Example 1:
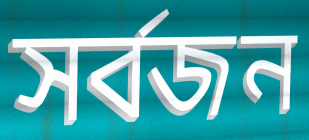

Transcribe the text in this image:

সর্বজন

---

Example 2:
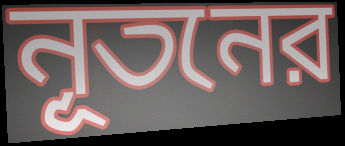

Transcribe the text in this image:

নূতনের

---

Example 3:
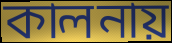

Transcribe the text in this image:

কালনায়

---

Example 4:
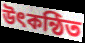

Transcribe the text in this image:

উৎকন্ঠিত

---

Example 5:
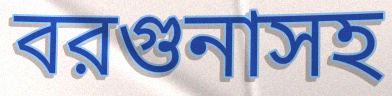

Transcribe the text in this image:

বরগুনাসহ